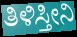
ತಿಳಿಸ್ತೀನಿ